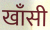
खाँसी